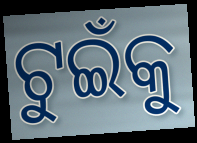
ଟୁଇଁକୁ